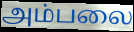
அம்பலை